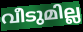
വീടുമില്ല